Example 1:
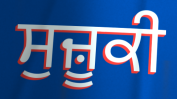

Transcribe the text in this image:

ਸੁਜ਼ੂਕੀ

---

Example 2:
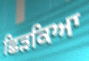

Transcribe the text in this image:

ਛਿੜਕਿਆ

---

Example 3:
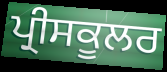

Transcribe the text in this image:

ਪ੍ਰੀਸਕੂਲਰ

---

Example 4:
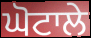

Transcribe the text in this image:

ਘੋਟਾਲੇ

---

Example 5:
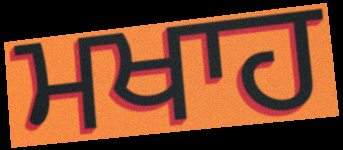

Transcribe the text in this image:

ਮਖਾਹ